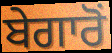
ਬੇਗਾਰੋਂ